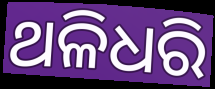
ଥଳିଧରି